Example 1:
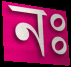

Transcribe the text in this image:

নঃ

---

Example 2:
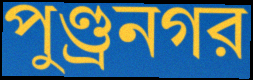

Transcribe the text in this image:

পুণ্ড্রনগর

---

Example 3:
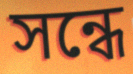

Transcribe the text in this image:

সন্ধে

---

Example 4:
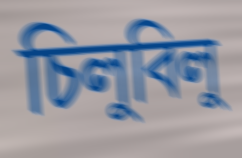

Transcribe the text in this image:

চিলুবিলু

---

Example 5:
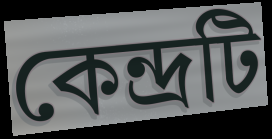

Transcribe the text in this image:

কেন্দ্রটি